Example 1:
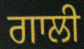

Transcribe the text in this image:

ਗਾਲੀ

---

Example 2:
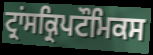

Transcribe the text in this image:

ਟ੍ਰਾਂਸਕ੍ਰਿਪਟੌਮਿਕਸ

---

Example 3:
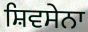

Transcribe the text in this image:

ਸ਼ਿਵਸੇਨਾ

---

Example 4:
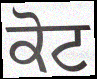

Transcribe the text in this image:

ਕੋਟ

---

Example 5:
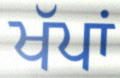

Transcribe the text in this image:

ਖੱਪਾਂ